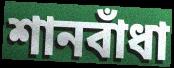
শানবাঁধা